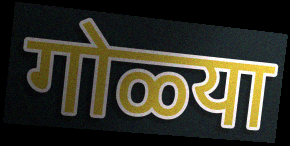
गोळ्या